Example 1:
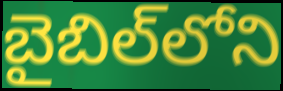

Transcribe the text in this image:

బైబిల్‌లోని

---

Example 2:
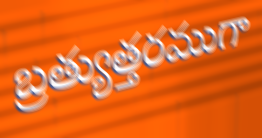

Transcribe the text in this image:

బ్రత్యుత్తరముగా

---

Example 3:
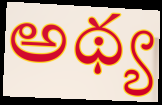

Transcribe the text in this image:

అథ్య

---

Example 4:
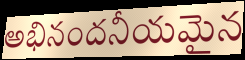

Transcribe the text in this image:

అభినందనీయమైన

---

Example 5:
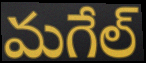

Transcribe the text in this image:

మగేల్